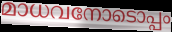
മാധവനോടൊപ്പം